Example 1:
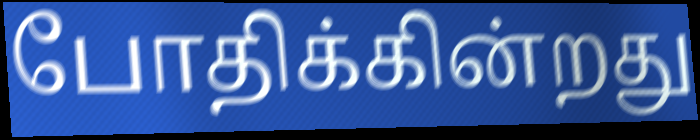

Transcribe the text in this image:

போதிக்கின்றது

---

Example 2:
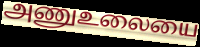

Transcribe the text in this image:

அணுஉலையை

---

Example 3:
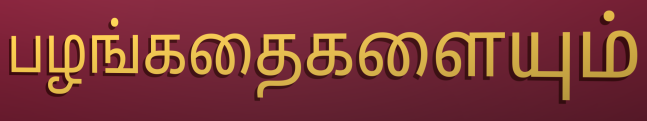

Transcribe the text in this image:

பழங்கதைகளையும்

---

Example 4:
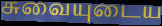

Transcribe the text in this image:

சுவையுடைய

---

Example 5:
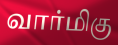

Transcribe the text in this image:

வார்மிகு